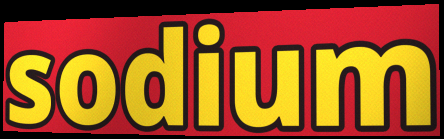
sodium